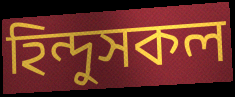
হিন্দুসকল